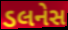
ડલનેસ